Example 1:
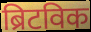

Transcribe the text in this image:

ब्रिटविक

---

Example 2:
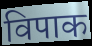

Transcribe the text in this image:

विपाक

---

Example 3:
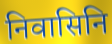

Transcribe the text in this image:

निवासिनि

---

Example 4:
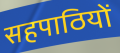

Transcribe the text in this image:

सहपाठियों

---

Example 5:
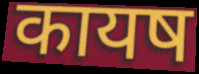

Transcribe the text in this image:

कायष